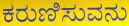
ಕರುಣಿಸುವನು